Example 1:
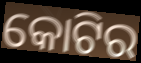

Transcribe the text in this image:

କୋଟିର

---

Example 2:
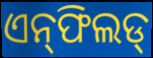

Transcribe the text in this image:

ଏନ୍‌ଫିଲଡ୍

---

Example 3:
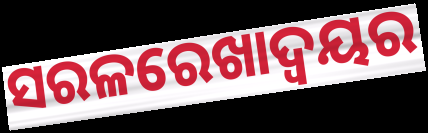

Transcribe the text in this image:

ସରଳରେଖାଦ୍ବୟର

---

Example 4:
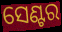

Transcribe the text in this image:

ସେଣ୍ଟର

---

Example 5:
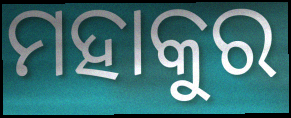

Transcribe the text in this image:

ମହାକୁର